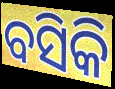
ବସିକି